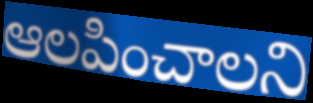
ఆలపించాలని